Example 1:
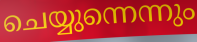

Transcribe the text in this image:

ചെയ്യുന്നെന്നും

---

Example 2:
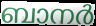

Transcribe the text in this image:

ബാനർ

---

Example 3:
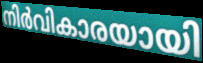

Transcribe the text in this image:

നിർവികാരയായി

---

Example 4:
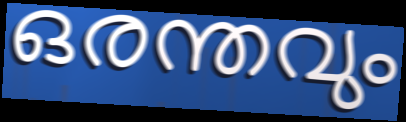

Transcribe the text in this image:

ഒരന്തവും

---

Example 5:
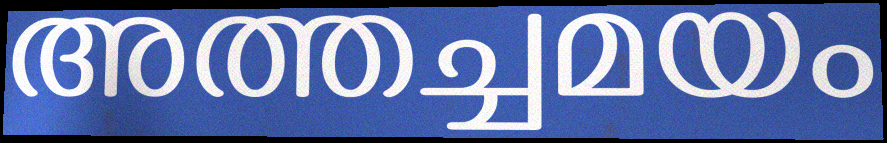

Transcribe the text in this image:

അത്തച്ചമയം